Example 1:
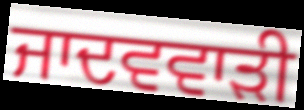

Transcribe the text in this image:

ਜਾਦਵਵਾੜੀ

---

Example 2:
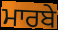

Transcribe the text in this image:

ਮਾਰਬੇ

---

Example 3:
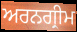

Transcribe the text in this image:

ਅਰਨਗ੍ਰੀਮ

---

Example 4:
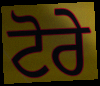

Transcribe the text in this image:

ਟੋਰੇ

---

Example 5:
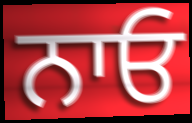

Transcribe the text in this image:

ਨਾਓ